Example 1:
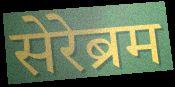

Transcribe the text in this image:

सेरेब्रम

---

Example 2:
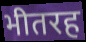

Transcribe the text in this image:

भीतरह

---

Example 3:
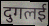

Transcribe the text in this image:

दुगलई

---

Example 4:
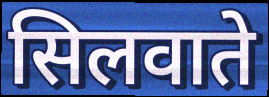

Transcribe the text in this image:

सिलवाते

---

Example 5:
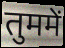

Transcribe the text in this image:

तुममें